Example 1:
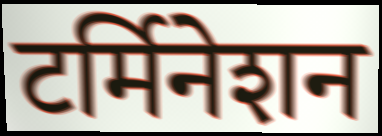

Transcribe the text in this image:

टर्मिनेशन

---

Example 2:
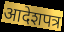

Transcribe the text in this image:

आदेशपत्र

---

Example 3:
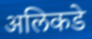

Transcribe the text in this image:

अलिकडे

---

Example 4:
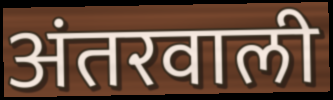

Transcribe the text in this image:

अंतरवाली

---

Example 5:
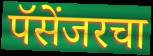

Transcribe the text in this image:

पॅसेंजरचा